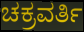
ಚಕ್ರವರ್ತಿ